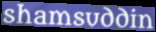
shamsuddin